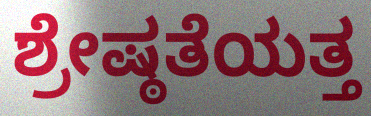
ಶ್ರೇಷ್ಠತೆಯತ್ತ